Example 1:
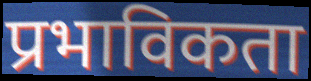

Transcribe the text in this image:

प्रभाविकता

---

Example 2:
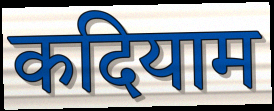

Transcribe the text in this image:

कदियाम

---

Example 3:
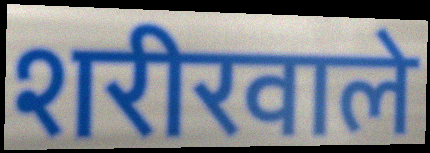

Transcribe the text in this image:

शरीरवाले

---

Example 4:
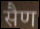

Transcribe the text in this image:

सैण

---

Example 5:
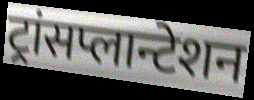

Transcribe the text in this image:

ट्रांसप्लान्टेशन